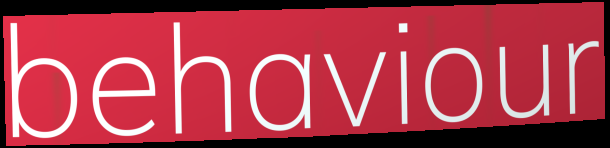
behaviour